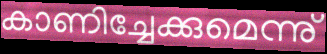
കാണിച്ചേക്കുമെന്നു്